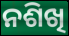
ନଶିଖି